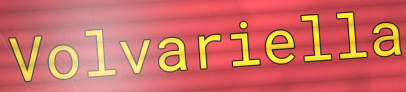
Volvariella